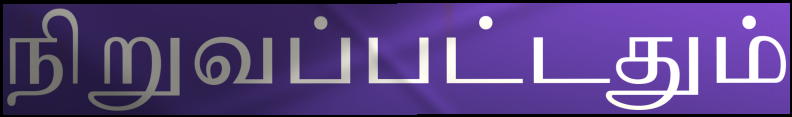
நிறுவப்பட்டதும்